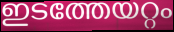
ഇടത്തേയറ്റം